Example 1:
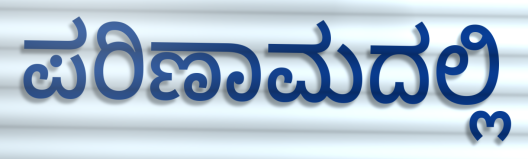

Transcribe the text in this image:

ಪರಿಣಾಮದಲ್ಲಿ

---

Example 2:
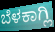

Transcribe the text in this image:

ಬೆಳಕಾಗ್ಲಿ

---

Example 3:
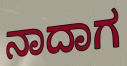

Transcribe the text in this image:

ನಾದಾಗ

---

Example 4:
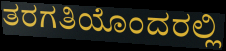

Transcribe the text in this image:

ತರಗತಿಯೊಂದರಲ್ಲಿ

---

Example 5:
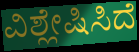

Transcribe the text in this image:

ವಿಶ್ಲೇಷಿಸಿದೆ